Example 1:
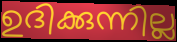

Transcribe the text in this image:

ഉദിക്കുന്നില്ല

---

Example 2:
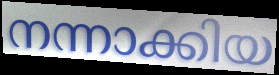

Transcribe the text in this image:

നന്നാക്കിയ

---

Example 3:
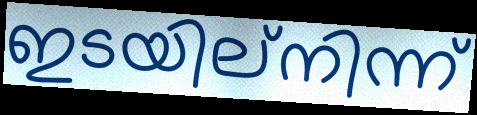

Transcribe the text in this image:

ഇടയില്നിന്ന്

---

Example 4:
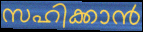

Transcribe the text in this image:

സഹിക്കാൻ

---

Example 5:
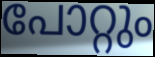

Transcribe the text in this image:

പോറ്റും